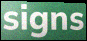
signs